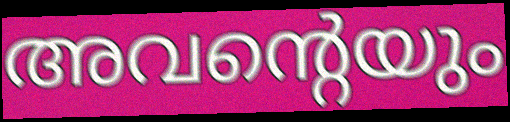
അവന്റെയും